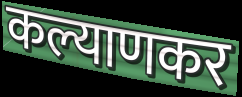
कल्याणकर